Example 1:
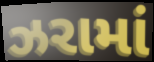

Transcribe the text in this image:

ઝરામાં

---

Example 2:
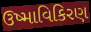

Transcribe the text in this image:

ઉષ્માવિકિરણ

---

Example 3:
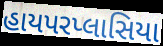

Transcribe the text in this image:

હાયપરપ્લાસિયા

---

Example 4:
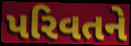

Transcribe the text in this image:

પરિવતને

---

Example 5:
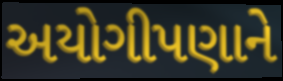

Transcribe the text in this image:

અયોગીપણાને